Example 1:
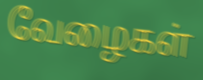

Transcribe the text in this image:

வேழைகள்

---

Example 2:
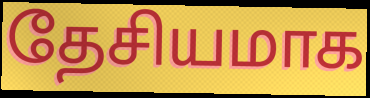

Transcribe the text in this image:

தேசியமாக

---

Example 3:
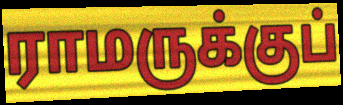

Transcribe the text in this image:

ராமருக்குப்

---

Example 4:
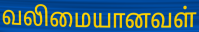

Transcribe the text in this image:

வலிமையானவள்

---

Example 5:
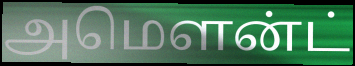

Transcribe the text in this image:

அமௌன்ட்